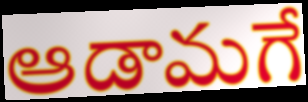
ఆడామగే